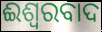
ଈଶ୍ବରବାଦ